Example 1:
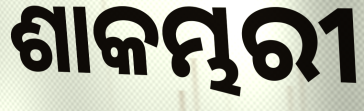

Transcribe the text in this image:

ଶାକମ୍ଭରୀ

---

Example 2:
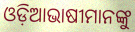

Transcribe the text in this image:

ଓଡ଼ିଆଭାଷୀମାନଙ୍କୁ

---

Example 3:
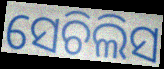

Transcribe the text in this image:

ସେଚିଲିସ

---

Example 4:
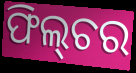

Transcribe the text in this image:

ଫିଲ୍‌ଚର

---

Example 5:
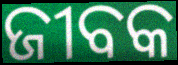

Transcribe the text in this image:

ଜୀବକ